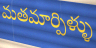
మతమార్పిళ్ళు